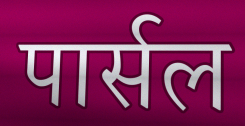
पार्सल